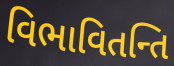
વિભાવિતન્તિ